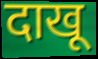
दाखू